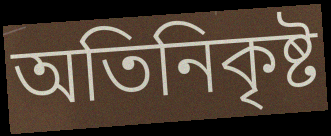
অতিনিকৃষ্ট